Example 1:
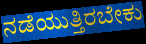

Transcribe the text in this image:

ನಡೆಯುತ್ತಿರಬೇಕು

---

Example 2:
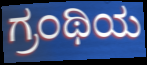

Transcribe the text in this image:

ಗ್ರಂಥಿಯ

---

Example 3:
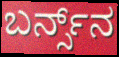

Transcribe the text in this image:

ಬರ್ನ್ಸ್‌ನ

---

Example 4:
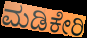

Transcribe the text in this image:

ಮಡಿಕೇರಿ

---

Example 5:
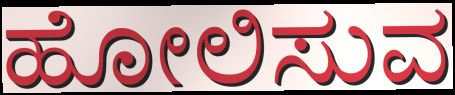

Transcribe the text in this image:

ಹೋಲಿಸುವ